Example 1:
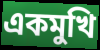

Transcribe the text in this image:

একমুখি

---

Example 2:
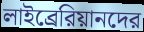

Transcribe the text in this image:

লাইব্রেরিয়ানদের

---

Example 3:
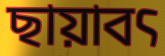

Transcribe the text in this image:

ছায়াবৎ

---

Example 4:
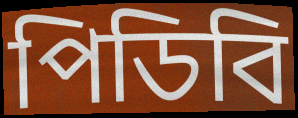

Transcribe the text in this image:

পিডিবি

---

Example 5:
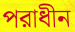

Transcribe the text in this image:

পরাধীন